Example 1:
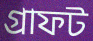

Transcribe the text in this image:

গ্রাফট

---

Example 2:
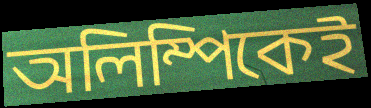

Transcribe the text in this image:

অলিম্পিকেই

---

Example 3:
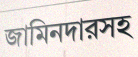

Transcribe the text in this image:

জামিনদারসহ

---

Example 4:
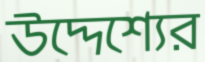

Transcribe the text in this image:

উদ্দেশ্যের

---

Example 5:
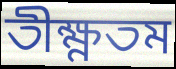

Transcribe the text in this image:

তীক্ষ্ণতম